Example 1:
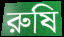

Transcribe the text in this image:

রুষি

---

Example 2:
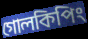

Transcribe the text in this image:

গোলকিপিং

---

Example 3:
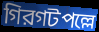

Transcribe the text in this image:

গিরগটপল্লে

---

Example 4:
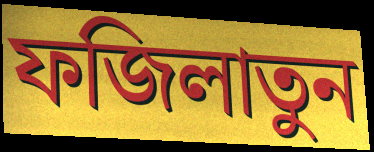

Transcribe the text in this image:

ফজিলাতুন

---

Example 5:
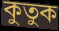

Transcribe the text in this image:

কুতুক